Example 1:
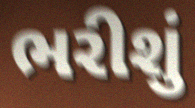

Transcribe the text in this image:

ભરીશું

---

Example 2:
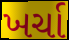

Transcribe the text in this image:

ખર્ચા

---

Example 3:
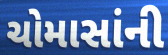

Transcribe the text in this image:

ચોમાસાંની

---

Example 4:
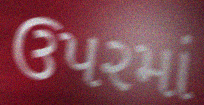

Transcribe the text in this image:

ઉપરમાં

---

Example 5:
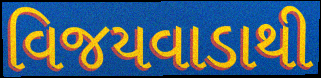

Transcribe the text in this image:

વિજયવાડાથી